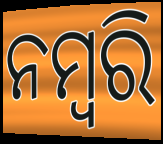
ନମ୍ବରି